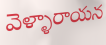
వెళ్ళారాయన